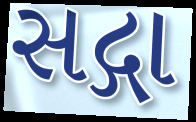
સદ્ગા